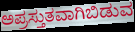
ಅಪ್ರಸ್ತುತವಾಗಿಬಿಡುವ